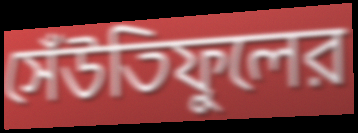
সেঁউতিফুলের